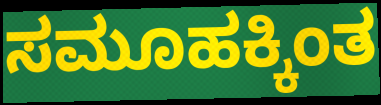
ಸಮೂಹಕ್ಕಿಂತ